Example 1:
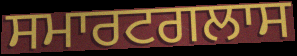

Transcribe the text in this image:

ਸਮਾਰਟਗਲਾਸ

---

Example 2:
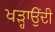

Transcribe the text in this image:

ਖੜ੍ਹਾਉਂਦੀ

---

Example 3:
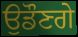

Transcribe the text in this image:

ਉਡੌਣਗੇ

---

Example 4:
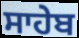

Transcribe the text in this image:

ਸਾਹੇਬ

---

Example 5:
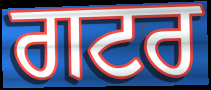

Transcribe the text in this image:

ਗਟਰ